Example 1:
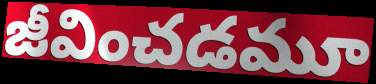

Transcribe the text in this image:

జీవించడమూ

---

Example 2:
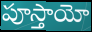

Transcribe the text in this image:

పూస్తాయో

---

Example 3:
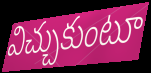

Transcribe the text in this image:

విచ్చుకుంటూ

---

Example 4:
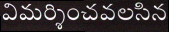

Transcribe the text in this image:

విమర్శించవలసిన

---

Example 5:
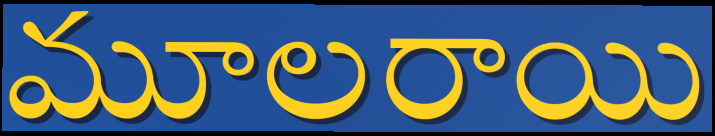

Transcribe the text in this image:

మూలరాయి